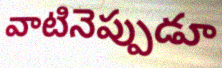
వాటినెప్పుడూ